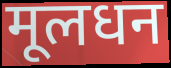
मूलधन